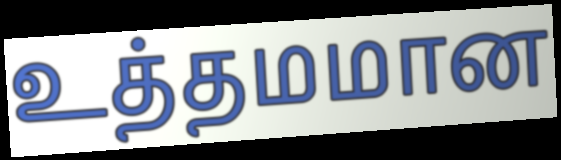
உத்தமமான